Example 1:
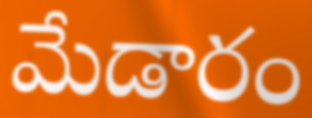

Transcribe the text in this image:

మేడారం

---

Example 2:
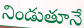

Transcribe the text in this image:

నిండుతూనే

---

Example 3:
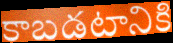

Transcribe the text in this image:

కాబడటానికి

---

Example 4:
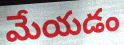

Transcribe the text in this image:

మేయడం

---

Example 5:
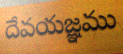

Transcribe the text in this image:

దేవయజ్ఞము